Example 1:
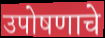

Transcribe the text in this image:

उपोषणाचे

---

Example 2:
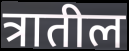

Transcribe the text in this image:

त्रातील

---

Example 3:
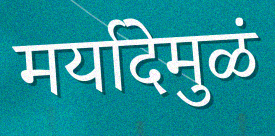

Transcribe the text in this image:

मर्यादेमुळं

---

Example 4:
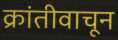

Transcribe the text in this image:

क्रांतीवाचून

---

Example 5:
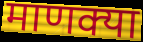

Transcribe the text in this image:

माणक्या